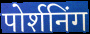
पोर्शनिंग